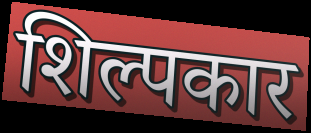
शिल्पकार